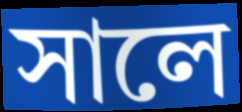
সালে